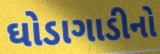
ઘોડાગાડીનો